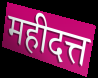
महीदत्त